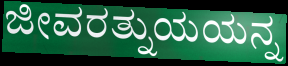
ಜೀವರತ್ನುಯಯನ್ನ